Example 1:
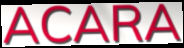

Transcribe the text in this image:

ACARA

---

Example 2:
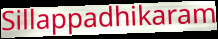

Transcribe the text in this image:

Sillappadhikaram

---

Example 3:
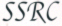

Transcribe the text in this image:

SSRC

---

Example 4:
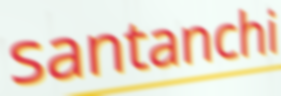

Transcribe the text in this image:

santanchi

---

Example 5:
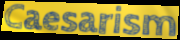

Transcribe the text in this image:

Caesarism